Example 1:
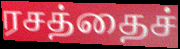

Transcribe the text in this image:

ரசத்தைச்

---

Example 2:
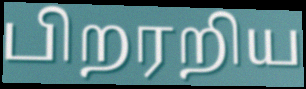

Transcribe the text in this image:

பிறரறிய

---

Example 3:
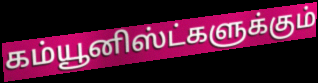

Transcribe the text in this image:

கம்யூனிஸ்ட்களுக்கும்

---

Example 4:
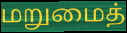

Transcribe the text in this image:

மறுமைத்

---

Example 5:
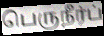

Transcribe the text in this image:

பெருநீர்ப்